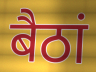
बैठां